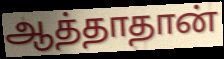
ஆத்தாதான்